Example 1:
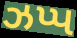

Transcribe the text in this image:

ઝપ્પ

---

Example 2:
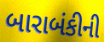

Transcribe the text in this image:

બારાબંકીની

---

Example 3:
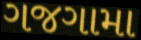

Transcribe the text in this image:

ગજગામા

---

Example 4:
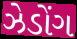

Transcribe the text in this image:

ઝેડોંગ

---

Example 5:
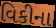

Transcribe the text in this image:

વિકીના